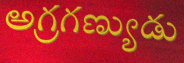
అగ్రగణ్యుడు